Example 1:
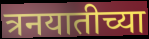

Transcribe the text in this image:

त्रनयातीच्या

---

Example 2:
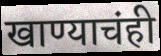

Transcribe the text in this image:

खाण्याचंही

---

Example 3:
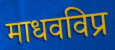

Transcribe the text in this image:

माधवविप्र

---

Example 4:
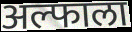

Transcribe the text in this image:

अल्फाला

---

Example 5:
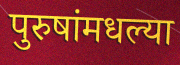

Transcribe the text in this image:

पुरुषांमधल्या